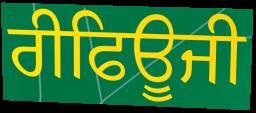
ਰੀਫਿਊਜੀ